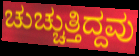
ಚುಚ್ಚುತ್ತಿದ್ದವು